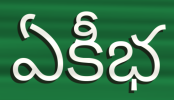
ఏకీభ